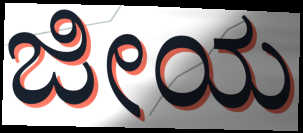
ಜೀಯ